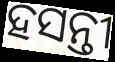
ହସନ୍ତୀ